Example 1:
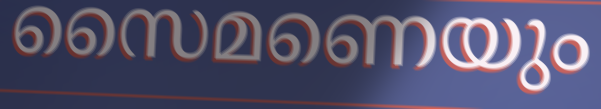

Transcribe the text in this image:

സൈമണെയും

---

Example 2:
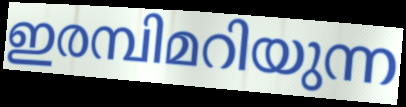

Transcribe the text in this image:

ഇരമ്പിമറിയുന്ന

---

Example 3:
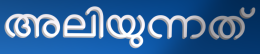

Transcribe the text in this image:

അലിയുന്നത്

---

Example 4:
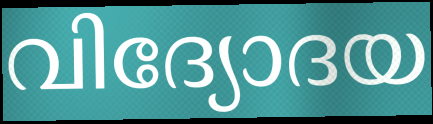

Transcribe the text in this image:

വിദ്യോദയ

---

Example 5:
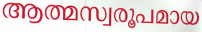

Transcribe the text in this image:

ആത്മസ്വരൂപമായ